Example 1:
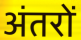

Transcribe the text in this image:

अंतरों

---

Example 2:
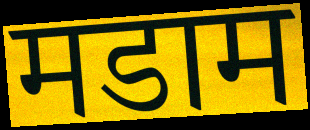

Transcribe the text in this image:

मडाम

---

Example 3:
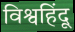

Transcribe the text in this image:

विश्वहिंदू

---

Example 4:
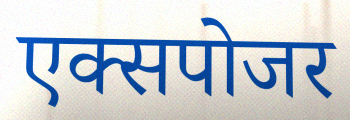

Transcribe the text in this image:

एक्सपोजर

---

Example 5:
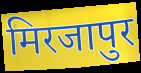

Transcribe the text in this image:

मिरजापुर